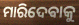
ମାରିଦେଵାକୁ